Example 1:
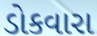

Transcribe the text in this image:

ડોકવારા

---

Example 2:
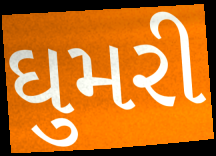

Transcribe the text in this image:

ઘુમરી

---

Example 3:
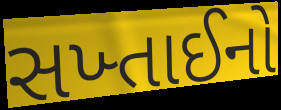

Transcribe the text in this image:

સખ્તાઈનો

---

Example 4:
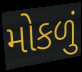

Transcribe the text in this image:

મોકળું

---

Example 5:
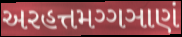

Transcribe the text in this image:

અરહત્તમગ્ગઞાણં